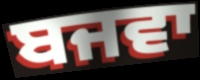
ਬਜਵਾ